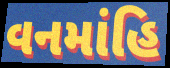
વનમાંહિ